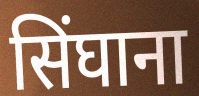
सिंघाना